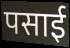
पसाई